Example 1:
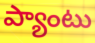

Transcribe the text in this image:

ప్యాంటు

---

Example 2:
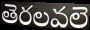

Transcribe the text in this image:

తెరలవలె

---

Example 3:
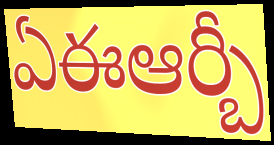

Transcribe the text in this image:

ఏఈఆర్బీ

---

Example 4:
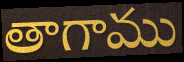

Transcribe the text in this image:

తాగాము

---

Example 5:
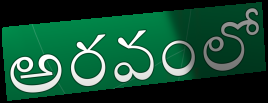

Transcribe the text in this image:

అరవంలో